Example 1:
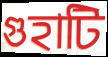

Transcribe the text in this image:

গুহাটি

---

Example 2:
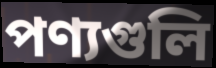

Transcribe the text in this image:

পণ্যগুলি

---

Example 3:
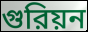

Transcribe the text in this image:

গুরিয়ন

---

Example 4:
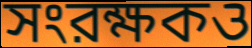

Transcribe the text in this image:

সংরক্ষকও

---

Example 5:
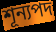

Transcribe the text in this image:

শূন্যপদ